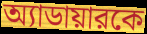
অ্যাডায়ারকে